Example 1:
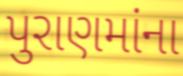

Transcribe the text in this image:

પુરાણમાંના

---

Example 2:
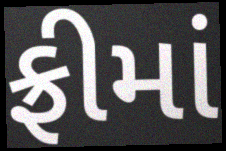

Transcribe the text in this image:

ફ્રીમાં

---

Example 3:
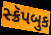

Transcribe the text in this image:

સ્ક્રૅપબુક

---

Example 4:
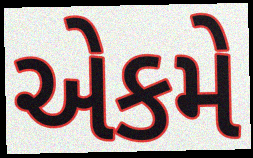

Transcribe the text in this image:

એકમે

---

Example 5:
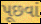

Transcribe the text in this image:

પૂછવાં